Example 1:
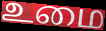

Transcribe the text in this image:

உமை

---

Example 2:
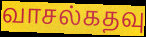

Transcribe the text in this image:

வாசல்கதவு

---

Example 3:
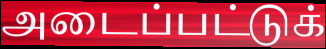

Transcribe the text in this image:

அடைப்பட்டுக்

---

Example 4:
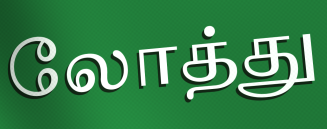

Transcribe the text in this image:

லோத்து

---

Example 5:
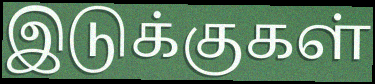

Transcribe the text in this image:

இடுக்குகள்